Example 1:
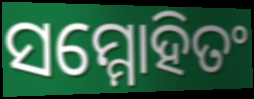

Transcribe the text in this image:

ସମ୍ମୋହିତଂ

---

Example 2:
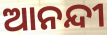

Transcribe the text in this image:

ଆନନ୍ଦୀ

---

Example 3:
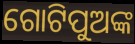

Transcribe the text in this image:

ଗୋଟିପୁଅଙ୍କ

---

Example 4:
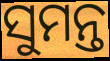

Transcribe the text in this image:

ସୁମନ୍ତ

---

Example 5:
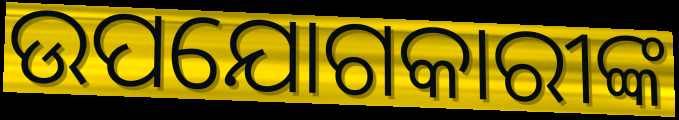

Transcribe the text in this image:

ଉପଯୋଗକାରୀଙ୍କ